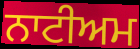
ਨਾਟੀਅਮ